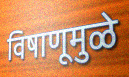
विषाणूमुळे